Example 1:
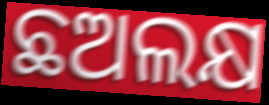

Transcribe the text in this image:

ଛଅଲକ୍ଷ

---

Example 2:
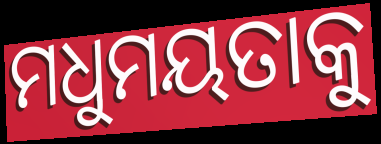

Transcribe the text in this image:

ମଧୁମୟତାକୁ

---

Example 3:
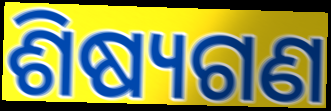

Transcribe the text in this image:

ଶିଷ୍ୟଗଣ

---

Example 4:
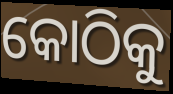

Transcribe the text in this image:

କୋଠିକୁ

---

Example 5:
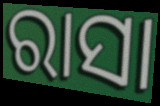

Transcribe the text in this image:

ରାସା